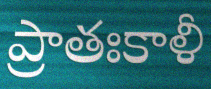
ప్రాతఃకాళీ